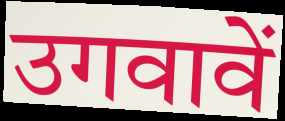
उगवावें